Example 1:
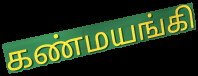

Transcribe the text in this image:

கண்மயங்கி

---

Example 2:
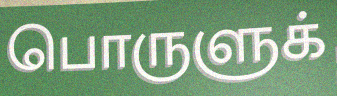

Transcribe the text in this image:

பொருளுக்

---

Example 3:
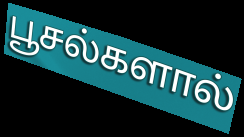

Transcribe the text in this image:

பூசல்களால்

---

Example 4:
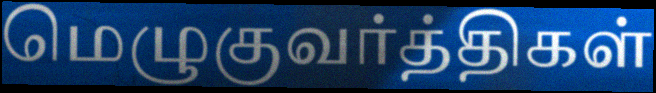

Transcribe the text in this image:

மெழுகுவர்த்திகள்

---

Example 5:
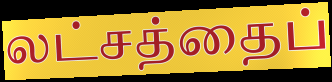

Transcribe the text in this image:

லட்சத்தைப்